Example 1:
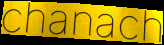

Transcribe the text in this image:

chanach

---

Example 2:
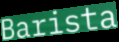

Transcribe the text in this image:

Barista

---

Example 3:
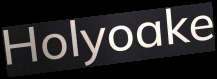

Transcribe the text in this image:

Holyoake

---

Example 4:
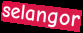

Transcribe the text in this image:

selangor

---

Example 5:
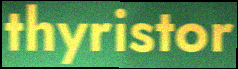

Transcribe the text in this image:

thyristor